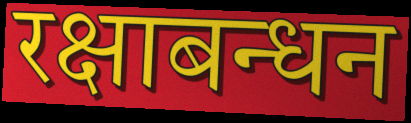
रक्षाबन्धन